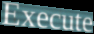
Execute